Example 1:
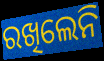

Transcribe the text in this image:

ରଖିଲେନି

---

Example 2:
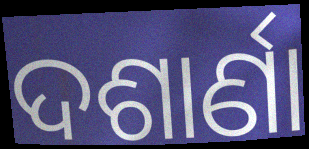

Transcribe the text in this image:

ଦଶାର୍ଣା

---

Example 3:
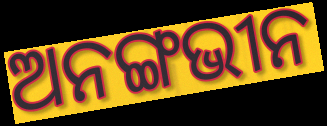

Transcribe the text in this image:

ଅନଙ୍ଗଭୀନ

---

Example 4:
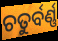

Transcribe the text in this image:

ଚତୁର୍ବର୍ଣ୍ଣ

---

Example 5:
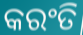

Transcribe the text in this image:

କରଂତି